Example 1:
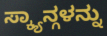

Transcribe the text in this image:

ಸ್ಕ್ಯಾನ್ಗಳನ್ನು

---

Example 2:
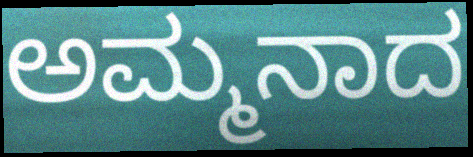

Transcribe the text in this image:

ಅಮ್ಮನಾದ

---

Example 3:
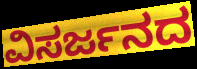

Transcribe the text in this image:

ವಿಸರ್ಜನದ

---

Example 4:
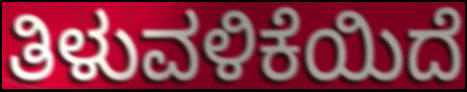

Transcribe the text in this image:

ತಿಳುವಳಿಕೆಯಿದೆ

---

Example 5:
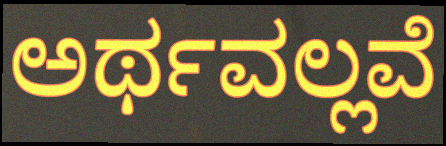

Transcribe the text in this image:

ಅರ್ಥವಲ್ಲವೆ